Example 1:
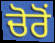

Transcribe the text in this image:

ਚੋਰੋਂ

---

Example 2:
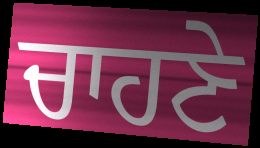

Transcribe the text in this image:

ਚਾਹਣੇ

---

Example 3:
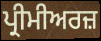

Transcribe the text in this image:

ਪ੍ਰੀਮੀਅਰਜ਼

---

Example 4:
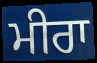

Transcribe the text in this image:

ਮੀਰਾ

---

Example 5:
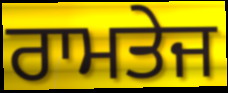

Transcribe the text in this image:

ਰਾਮਤੇਜ